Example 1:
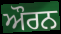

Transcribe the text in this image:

ਔਰਨ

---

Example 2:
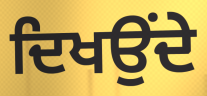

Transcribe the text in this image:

ਦਿਖਉਂਦੇ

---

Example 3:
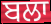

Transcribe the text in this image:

ਬਲਾ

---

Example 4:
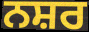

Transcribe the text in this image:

ਨਸ਼ਰ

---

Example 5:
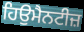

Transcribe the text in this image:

ਹਿਉਮੈਨਟੀਜ਼